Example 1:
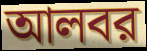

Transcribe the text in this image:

আলবর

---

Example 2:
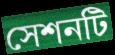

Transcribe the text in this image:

সেশনটি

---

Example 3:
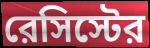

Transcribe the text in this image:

রেসিস্টের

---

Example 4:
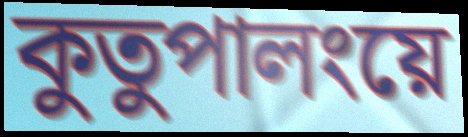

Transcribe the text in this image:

কুতুপালংয়ে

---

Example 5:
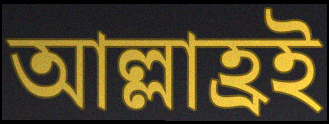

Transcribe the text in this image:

আল্লাহ্রই